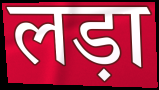
लड़ा